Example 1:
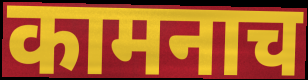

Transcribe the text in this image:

कामनाच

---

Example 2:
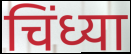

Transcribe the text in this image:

चिंध्या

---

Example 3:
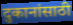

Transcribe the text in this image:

दुकानांसाठी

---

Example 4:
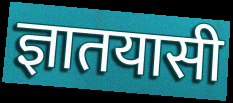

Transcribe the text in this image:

ज्ञातयासी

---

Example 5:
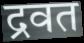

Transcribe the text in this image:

द्रवत